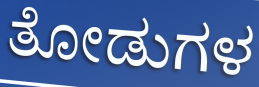
ತೋಡುಗಳ